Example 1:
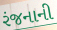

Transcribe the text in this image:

રંજનાની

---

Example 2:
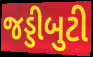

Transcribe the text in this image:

જડ્ડીબુટી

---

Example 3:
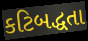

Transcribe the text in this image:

કટિબદ્ધતા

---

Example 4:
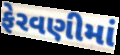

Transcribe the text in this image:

ફેરવણીમાં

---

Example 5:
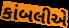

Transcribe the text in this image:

કાંબલીએ